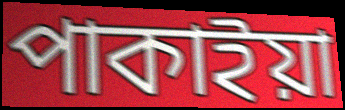
পাকাইয়া